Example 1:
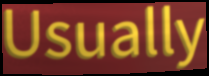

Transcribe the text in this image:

Usually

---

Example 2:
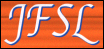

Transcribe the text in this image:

JFSL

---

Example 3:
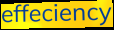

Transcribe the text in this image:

effeciency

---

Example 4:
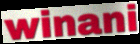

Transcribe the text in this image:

winani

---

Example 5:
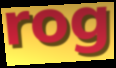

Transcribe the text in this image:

rog